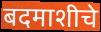
बदमाशीचे